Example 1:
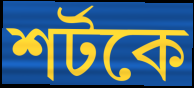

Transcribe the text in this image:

শর্টকে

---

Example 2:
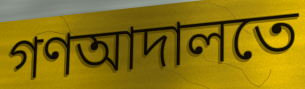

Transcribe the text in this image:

গণআদালতে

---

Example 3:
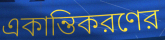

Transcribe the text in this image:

একান্তিকরণের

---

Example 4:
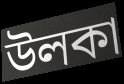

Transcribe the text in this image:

উলকা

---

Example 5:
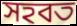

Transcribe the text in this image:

সহবত